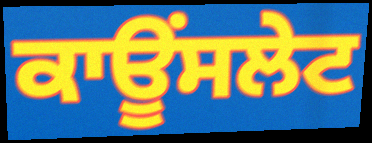
ਕਾਊਂਸਲੇਟ